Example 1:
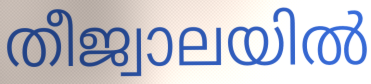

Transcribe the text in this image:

തീജ്വാലയിൽ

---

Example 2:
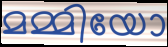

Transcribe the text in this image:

മമ്മിയോ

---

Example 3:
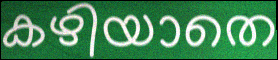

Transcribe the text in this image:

കഴിയാതെ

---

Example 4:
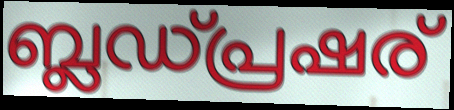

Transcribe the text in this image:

ബ്ലഡ്പ്രഷര്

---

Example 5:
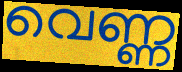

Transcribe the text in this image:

വെണ്ണ